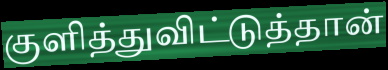
குளித்துவிட்டுத்தான்